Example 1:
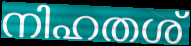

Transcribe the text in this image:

നിഹതശ്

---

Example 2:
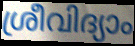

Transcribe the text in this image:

ശ്രീവിദ്യാം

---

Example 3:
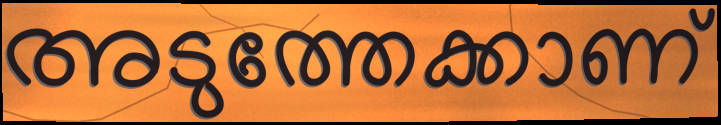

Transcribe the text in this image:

അടുത്തേക്കാണ്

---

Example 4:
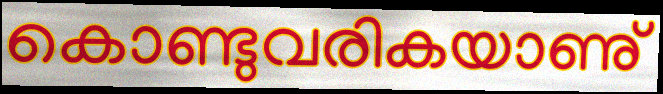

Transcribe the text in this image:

കൊണ്ടുവരികയാണു്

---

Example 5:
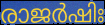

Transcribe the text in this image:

രാജർഷിഃ